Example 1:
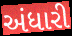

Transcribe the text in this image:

અંધારી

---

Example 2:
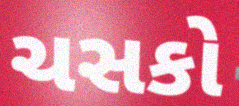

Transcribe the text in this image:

ચસકો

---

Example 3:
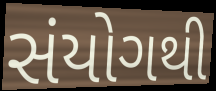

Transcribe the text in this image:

સંયોગથી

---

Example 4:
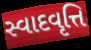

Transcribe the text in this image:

સ્વાદવૃત્તિ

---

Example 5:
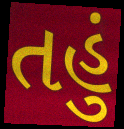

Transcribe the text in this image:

તહું